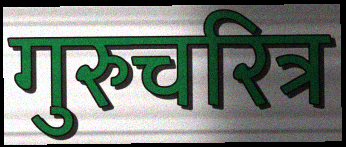
गुरुचरित्र